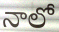
నాలో